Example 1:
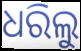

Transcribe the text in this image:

ଧରିଲୁ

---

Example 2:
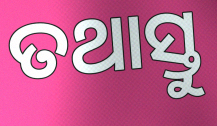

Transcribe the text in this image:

ତଥାସ୍ତୁ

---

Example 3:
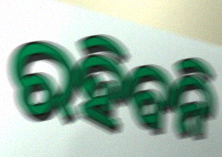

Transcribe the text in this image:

ରହିବନି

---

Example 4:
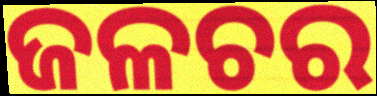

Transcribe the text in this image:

ଜଳଚର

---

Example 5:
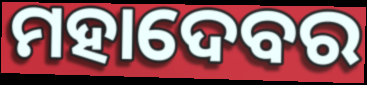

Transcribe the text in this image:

ମହାଦେବର